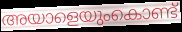
അയാളെയുംകൊണ്ട്